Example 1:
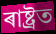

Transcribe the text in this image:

ৰাষ্ট্ৰত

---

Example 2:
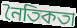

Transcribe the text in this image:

নৈতিকতা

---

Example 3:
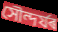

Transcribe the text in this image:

সৌন্দৰ্যৰ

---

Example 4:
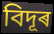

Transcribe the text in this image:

বিদূৰ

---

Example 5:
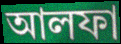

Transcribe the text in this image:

আলফা